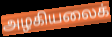
அழகியலைக்